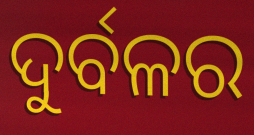
ଦୁର୍ବଳର